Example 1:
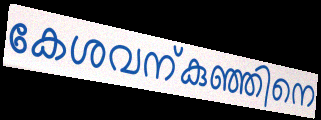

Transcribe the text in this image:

കേശവന്കുഞ്ഞിനെ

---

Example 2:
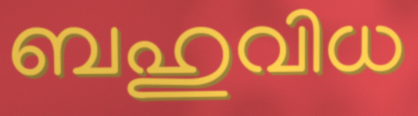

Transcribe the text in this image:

ബഹുവിധ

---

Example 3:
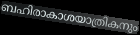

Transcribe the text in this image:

ബഹിരാകാശയാത്രികനും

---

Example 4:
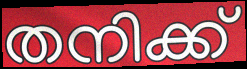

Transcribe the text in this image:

തനിക്ക്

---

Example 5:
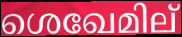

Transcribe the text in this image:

ശെഖേമില്